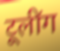
टूलींग